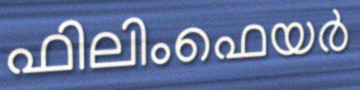
ഫിലിംഫെയർ